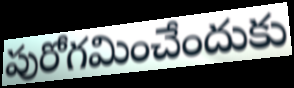
పురోగమించేందుకు